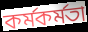
কর্মকর্মতা